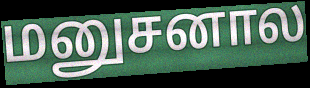
மனுசனால